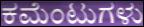
ಕಮೆಂಟುಗಳು